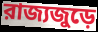
রাজ্যজুড়ে